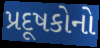
પ્રદૂષકોનો